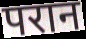
परान